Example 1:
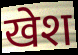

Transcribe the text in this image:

खेश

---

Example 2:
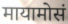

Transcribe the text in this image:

मायामोसं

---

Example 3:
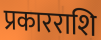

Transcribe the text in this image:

प्रकारराशि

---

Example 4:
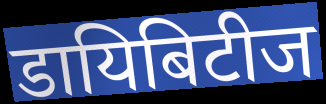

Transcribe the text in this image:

डायिबिटीज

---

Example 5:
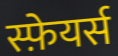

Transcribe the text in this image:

स्फ़ेयर्स